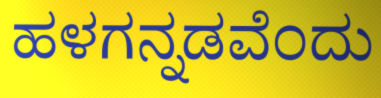
ಹಳಗನ್ನಡವೆಂದು